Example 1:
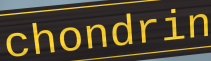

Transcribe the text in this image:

chondrin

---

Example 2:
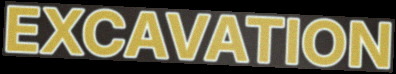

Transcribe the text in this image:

EXCAVATION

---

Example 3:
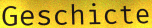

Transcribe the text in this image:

Geschicte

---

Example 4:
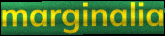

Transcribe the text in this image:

marginalia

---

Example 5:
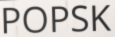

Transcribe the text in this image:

POPSK